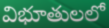
విభూతులలో